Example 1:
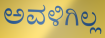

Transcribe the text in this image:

ಅವಳಿಗಿಲ್ಲ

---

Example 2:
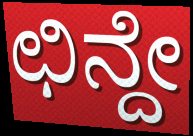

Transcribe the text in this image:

ಛಿನ್ದೇ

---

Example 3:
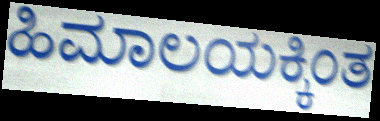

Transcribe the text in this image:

ಹಿಮಾಲಯಕ್ಕಿಂತ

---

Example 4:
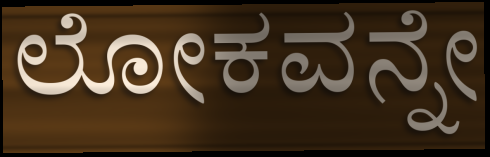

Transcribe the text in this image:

ಲೋಕವನ್ನೇ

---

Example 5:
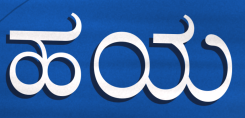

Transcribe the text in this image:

ಹಯ